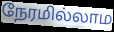
நேரமில்லாம